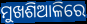
ମୁଖଶିଆଳିରେ